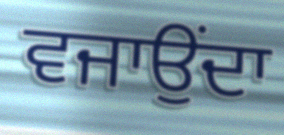
ਵਜਾਉਂਦਾ